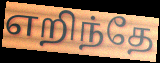
எறிந்தே